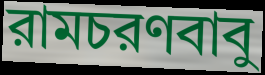
রামচরণবাবু